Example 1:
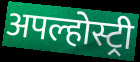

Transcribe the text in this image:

अपल्होस्ट्री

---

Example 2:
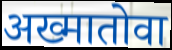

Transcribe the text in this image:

अख्मातोवा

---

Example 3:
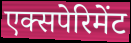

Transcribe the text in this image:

एक्सपेरिमेंट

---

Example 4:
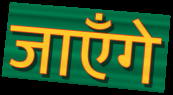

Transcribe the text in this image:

जाएँगे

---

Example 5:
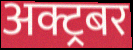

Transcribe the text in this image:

अक्ट्रबर